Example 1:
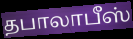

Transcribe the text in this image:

தபாலாபீஸ்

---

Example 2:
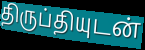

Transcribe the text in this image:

திருப்தியுடன்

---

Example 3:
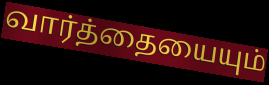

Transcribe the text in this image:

வார்த்தையையும்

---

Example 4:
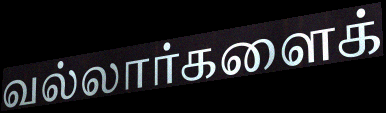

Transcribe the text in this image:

வல்லார்களைக்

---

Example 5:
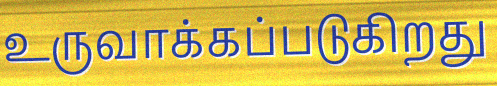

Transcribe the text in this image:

உருவாக்கப்படுகிறது